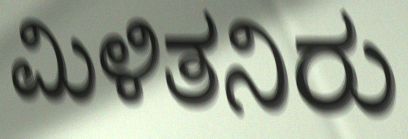
ಮಿಳಿತನಿರು